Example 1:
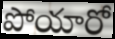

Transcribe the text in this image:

పోయారో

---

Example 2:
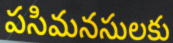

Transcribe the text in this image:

పసిమనసులకు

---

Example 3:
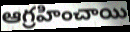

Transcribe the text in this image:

ఆగ్రహించాయి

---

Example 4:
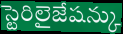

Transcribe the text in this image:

స్టెరిలైజేషన్కు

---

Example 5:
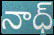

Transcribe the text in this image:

నాధ్